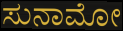
ಸುನಾಮೋ